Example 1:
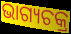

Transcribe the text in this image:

ଭାଗ୍ୟଚକ୍ର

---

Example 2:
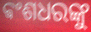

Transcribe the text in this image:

ଵଂଶଧରଙ୍କୁ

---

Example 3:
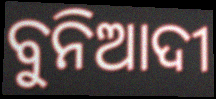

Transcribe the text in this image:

ବୁନିଆଦୀ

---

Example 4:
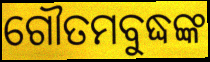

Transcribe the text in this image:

ଗୌତମବୁଦ୍ଧଙ୍କ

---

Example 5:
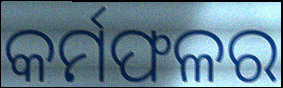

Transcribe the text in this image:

କର୍ମଫଳର